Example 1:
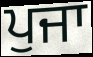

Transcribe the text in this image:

ਪੁਜਾ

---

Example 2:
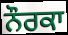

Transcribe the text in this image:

ਨੌਰਕਾ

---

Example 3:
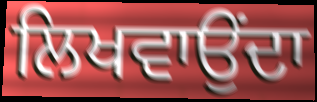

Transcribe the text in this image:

ਲਿਖਵਾਉਂਦਾ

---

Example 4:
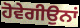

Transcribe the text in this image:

ਹੋਵੇਗੀਉਨਾਂ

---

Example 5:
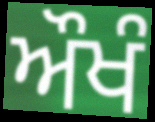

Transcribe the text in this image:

ਔਖੰ